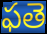
ఫతె